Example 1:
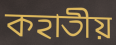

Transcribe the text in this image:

কহাতীয়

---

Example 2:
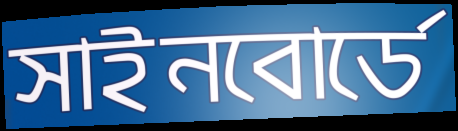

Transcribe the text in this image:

সাইনবোর্ডে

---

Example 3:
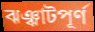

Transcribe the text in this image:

ঝঞ্ঝাটপূর্ণ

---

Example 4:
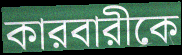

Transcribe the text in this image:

কারবারীকে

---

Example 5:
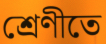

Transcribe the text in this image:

শ্রেণীতে